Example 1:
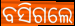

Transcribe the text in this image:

ବସିଗଲେ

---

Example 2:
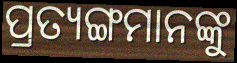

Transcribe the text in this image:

ପ୍ରତ୍ୟଙ୍ଗମାନଙ୍କୁ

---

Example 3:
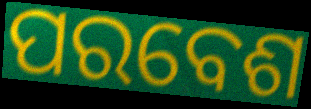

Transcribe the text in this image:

ପରବେଶ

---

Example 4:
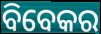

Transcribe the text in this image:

ବିବେକର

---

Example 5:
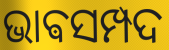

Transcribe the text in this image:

ଭାଵସମ୍ପଦ